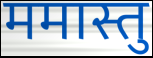
ममास्तु